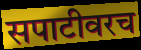
सपाटीवरच